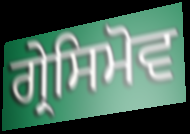
ਗ੍ਰੇਸਿਮੋਵ